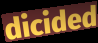
dicided